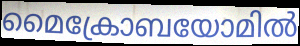
മൈക്രോബയോമിൽ